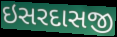
ઇસરદાસજી